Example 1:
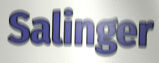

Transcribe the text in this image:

Salinger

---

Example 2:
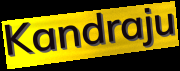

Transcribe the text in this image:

Kandraju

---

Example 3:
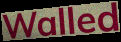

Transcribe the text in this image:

Walled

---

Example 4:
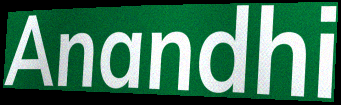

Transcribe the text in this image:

Anandhi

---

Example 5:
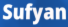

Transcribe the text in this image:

Sufyan